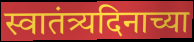
स्वातंत्र्यदिनाच्या